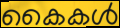
കൈകൾ